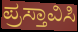
ಪ್ರಸ್ತಾವಿಸಿ